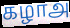
கழாஅ